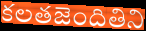
కలతజెందితిని